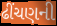
ઢીંચણની